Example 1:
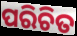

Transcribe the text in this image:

ପରିଚିତ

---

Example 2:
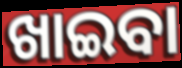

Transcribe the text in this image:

ଖାଇବା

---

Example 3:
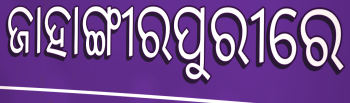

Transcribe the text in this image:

ଜାହାଙ୍ଗୀରପୁରୀରେ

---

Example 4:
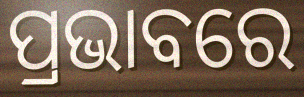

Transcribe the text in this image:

ପ୍ରଭାବରେ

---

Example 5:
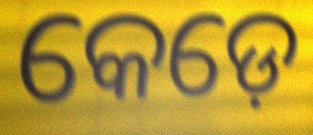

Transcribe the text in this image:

କେଡ଼େ